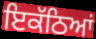
ਇਕੱਠਿਆਂ